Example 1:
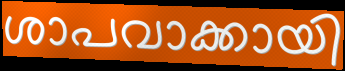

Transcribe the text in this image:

ശാപവാക്കായി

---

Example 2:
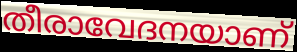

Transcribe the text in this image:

തീരാവേദനയാണ്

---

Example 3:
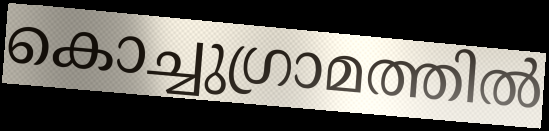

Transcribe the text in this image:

കൊച്ചുഗ്രാമത്തിൽ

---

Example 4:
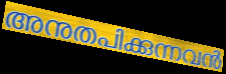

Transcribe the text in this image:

അനുതപിക്കുന്നവൻ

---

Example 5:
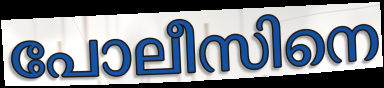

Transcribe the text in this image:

പോലീസിനെ